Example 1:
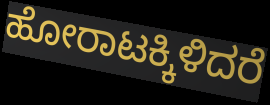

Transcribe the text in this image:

ಹೋರಾಟಕ್ಕಿಳಿದರೆ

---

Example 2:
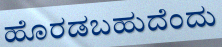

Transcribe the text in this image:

ಹೊರಡಬಹುದೆಂದು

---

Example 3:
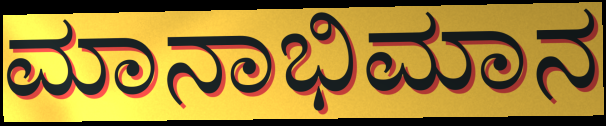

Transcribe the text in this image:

ಮಾನಾಭಿಮಾನ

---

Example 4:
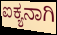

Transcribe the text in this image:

ಐಕ್ಯನಾಗಿ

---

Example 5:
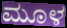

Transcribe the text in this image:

ಮೂಳ